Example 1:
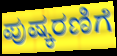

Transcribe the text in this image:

ಪುಷ್ಕರಣಿಗೆ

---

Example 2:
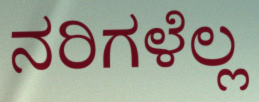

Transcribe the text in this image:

ನರಿಗಳೆಲ್ಲ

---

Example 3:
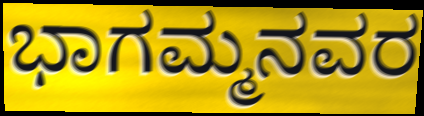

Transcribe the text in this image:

ಭಾಗಮ್ಮನವರ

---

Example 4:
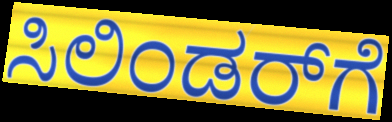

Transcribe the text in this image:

ಸಿಲಿಂಡರ್‌ಗೆ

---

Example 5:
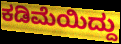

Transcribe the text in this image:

ಕಡಿಮೆಯಿದ್ದು